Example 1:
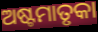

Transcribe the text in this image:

ଅଷ୍ଟମାତୃକା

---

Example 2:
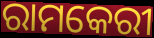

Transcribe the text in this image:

ରାମକେରୀ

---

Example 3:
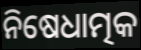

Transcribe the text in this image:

ନିଷେଧାତ୍ମକ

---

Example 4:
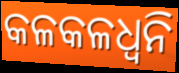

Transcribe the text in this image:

କଳକଳଧ୍ଵନି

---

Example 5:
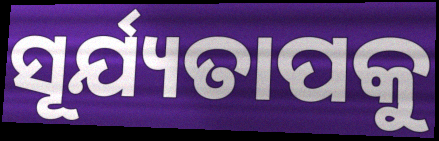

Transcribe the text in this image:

ସୂର୍ଯ୍ୟତାପକୁ